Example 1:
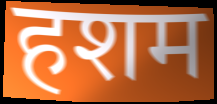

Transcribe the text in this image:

हशम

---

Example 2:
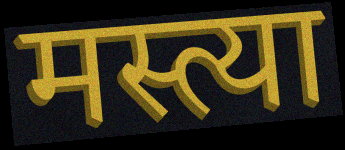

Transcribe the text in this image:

मस्त्या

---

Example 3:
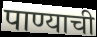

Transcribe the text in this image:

पाण्याची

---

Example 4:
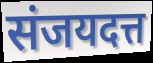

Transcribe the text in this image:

संजयदत्त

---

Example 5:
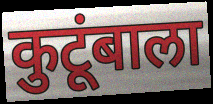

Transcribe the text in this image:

कुटूंबाला